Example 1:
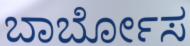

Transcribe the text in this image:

ಬಾರ್ಬೋಸ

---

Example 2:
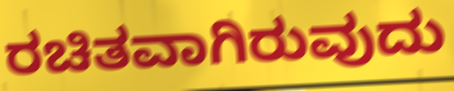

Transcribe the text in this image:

ರಚಿತವಾಗಿರುವುದು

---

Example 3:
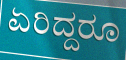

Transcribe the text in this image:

ಏರಿದ್ದರೂ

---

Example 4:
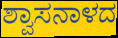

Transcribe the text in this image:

ಶ್ವಾಸನಾಳದ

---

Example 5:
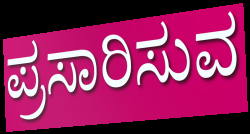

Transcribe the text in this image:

ಪ್ರಸಾರಿಸುವ